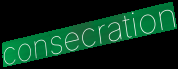
consecration